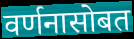
वर्णनासोबत